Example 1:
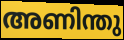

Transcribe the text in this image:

അണിന്തു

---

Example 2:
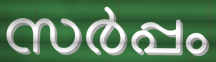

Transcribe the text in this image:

സർപ്പം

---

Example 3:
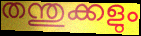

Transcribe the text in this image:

തന്തുക്കളും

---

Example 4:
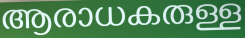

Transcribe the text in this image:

ആരാധകരുള്ള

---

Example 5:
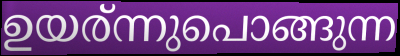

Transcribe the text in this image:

ഉയര്ന്നുപൊങ്ങുന്ന